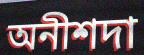
অনীশদা